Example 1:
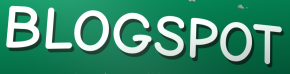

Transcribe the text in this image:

BLOGSPOT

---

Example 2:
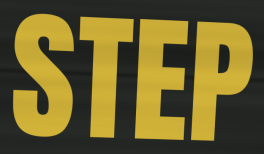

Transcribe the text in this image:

STEP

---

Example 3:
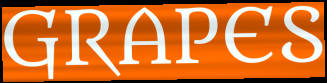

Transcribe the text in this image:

GRAPES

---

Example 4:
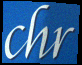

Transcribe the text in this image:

chr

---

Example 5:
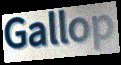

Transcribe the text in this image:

Gallop